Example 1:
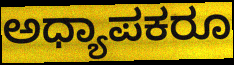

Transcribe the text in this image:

ಅಧ್ಯಾಪಕರೂ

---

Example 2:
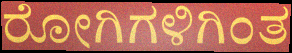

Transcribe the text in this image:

ರೋಗಿಗಳಿಗಿಂತ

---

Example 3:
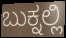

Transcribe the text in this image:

ಬುಕ್ನಲ್ಲಿ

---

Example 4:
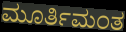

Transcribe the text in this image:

ಮೂರ್ತಿಮಂತ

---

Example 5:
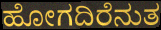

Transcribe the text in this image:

ಹೋಗದಿರೆನುತ